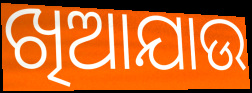
ଖିଆଯାଉ